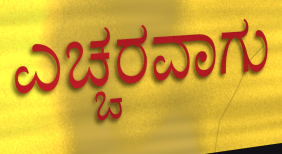
ಎಚ್ಚರವಾಗು